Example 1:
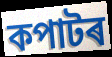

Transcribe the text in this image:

কপাটৰ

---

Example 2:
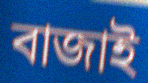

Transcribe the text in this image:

বাজাই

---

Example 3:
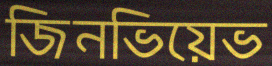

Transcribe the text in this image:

জিনভিয়েভ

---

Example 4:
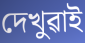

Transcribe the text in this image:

দেখুৱাই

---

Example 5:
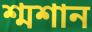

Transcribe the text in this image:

শ্মশান